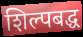
शिल्पबद्ध